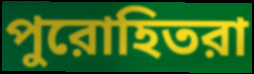
পুরোহিতরা